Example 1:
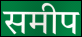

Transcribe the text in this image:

समीप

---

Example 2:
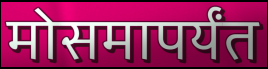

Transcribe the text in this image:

मोसमापर्यंत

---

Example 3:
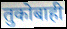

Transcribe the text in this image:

तुकोबाही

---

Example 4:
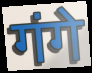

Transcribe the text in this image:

गंगे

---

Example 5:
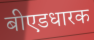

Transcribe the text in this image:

बीएडधारक